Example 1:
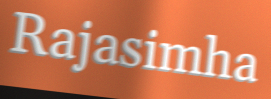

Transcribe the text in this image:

Rajasimha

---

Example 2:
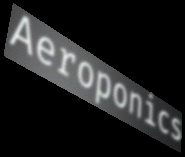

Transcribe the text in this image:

Aeroponics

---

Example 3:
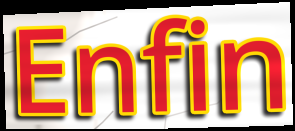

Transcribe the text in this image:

Enfin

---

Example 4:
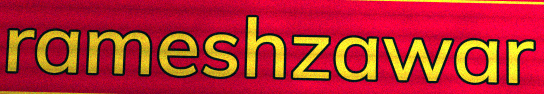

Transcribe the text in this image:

rameshzawar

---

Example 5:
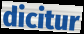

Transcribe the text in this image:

dicitur